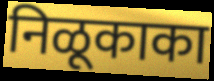
निळूकाका